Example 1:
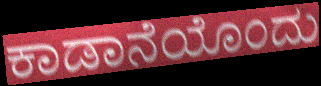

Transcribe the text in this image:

ಕಾಡಾನೆಯೊಂದು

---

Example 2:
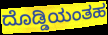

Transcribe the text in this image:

ದೊಡ್ಡಿಯಂತಹ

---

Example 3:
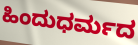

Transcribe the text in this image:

ಹಿಂದುಧರ್ಮದ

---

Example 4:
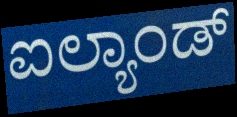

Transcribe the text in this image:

ಐಲ್ಯಾಂಡ್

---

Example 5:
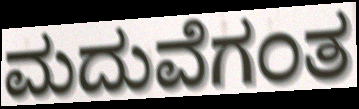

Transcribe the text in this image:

ಮದುವೆಗಂತ